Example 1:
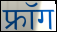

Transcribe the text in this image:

फ्रॉग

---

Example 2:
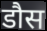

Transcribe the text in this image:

डौस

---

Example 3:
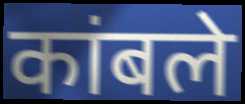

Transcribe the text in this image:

कांबले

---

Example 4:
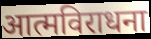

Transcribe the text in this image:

आत्मविराधना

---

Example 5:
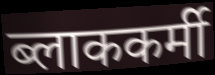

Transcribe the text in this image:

ब्लाककर्मी